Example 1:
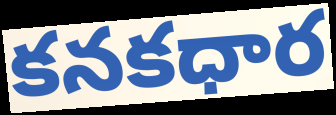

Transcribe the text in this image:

కనకధార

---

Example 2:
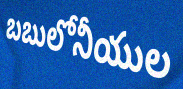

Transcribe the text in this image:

బబులోనీయుల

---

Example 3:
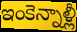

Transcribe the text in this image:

ఇంకెన్నాళ్లీ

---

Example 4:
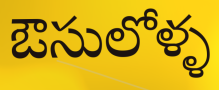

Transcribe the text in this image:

ఔసులోళ్ళ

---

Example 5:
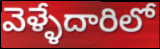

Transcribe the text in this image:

వెళ్ళేదారిలో